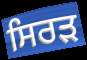
ਸਿਰਡ਼